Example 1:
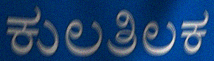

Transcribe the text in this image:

ಕುಲತಿಲಕ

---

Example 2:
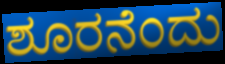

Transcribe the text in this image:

ಶೂರನೆಂದು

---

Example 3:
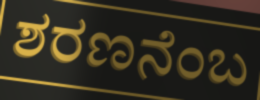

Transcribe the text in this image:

ಶರಣನೆಂಬ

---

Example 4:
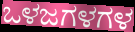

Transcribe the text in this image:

ಒಳಜಗಳಗಳ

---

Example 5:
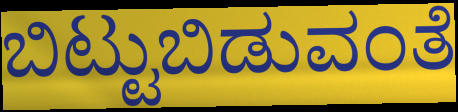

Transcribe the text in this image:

ಬಿಟ್ಟುಬಿಡುವಂತೆ